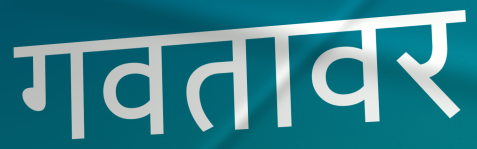
गवतावर